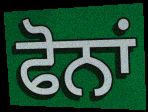
ਫੋਨਾਂ